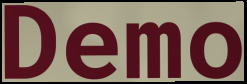
Demo